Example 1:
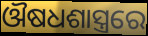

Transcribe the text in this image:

ଔଷଧଶାସ୍ତ୍ରରେ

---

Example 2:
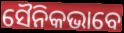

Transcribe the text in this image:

ସୈନିକଭାବେ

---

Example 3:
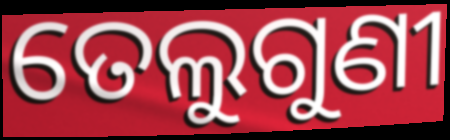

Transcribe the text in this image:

ତେଲୁଗୁଣୀ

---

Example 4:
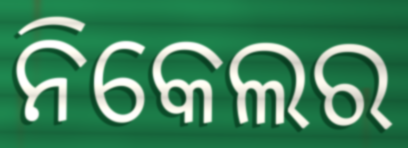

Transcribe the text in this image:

ନିକେଲର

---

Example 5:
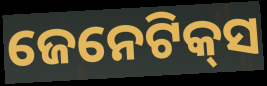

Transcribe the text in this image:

ଜେନେଟିକ୍‌ସ